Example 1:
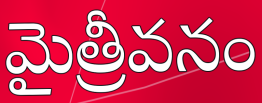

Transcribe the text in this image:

మైత్రీవనం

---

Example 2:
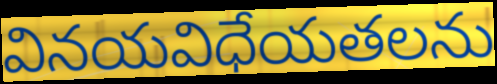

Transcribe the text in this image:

వినయవిధేయతలను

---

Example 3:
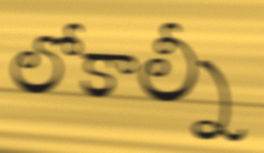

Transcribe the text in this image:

లోకాల్నీ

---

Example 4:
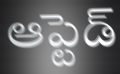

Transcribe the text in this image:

ఆప్టెడ్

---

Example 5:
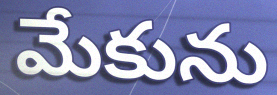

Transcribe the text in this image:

మేకును